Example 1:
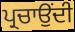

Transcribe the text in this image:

ਪ੍ਰਚਾਉਂਦੀ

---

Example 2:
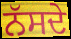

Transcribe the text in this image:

ਨੱਸਦੇ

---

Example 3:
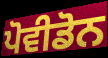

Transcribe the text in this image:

ਪੋਵੀਡੋਨ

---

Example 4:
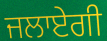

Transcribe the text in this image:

ਜਲਾਏਗੀ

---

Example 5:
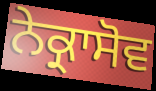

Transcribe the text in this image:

ਨੇਕ੍ਰਾਸੋਵ